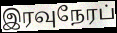
இரவுநேரப்